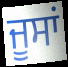
ਜੂਸਾਂ